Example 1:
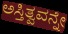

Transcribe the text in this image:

ಅಸ್ತಿತ್ವವನ್ನೇ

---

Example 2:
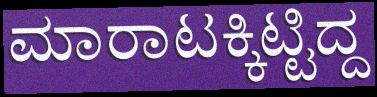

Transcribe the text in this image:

ಮಾರಾಟಕ್ಕಿಟ್ಟಿದ್ದ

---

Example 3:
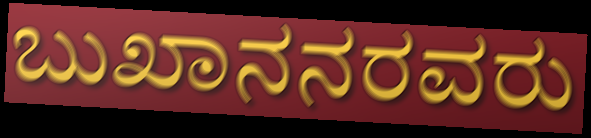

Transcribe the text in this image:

ಬುಖಾನನರವರು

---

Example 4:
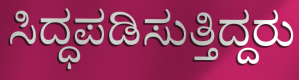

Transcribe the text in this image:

ಸಿದ್ಧಪಡಿಸುತ್ತಿದ್ದರು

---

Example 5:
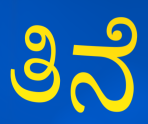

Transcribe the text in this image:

ತಿನೆ